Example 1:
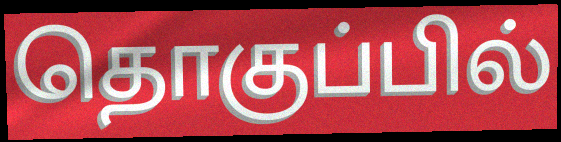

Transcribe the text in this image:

தொகுப்பில்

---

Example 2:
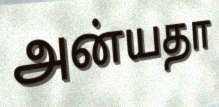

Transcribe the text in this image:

அன்யதா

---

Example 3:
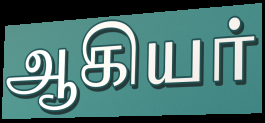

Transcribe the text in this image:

ஆகியர்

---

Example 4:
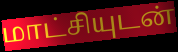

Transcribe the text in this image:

மாட்சியுடன்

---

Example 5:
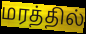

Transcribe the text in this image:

மரத்தில்